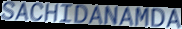
SACHIDANAMDA